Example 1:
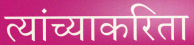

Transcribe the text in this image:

त्यांच्याकरिता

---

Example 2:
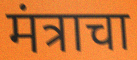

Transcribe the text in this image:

मंत्राचा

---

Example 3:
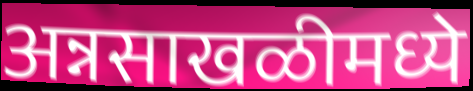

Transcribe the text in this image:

अन्नसाखळीमध्ये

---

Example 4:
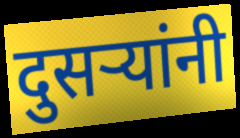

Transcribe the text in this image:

दुसर्‍यांनी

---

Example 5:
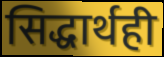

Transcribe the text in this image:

सिद्धार्थही